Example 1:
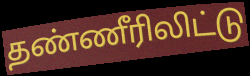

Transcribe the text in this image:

தண்ணீரிலிட்டு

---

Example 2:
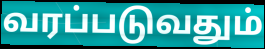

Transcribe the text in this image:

வரப்படுவதும்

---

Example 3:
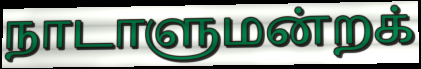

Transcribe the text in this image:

நாடாளுமன்றக்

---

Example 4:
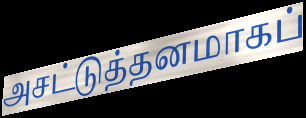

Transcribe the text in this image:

அசட்டுத்தனமாகப்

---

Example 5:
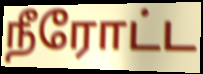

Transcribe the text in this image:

நீரோட்ட